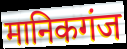
मानिकगंज